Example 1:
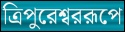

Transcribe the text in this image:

ত্রিপুরেশ্বররূপে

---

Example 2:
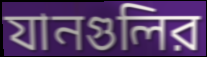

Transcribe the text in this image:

যানগুলির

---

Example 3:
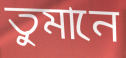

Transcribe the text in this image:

তুমানে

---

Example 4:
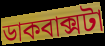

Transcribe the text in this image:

ডাকবাক্সটা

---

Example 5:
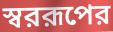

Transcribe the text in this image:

স্বররূপের